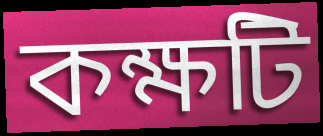
কক্ষটি